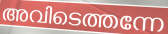
അവിടെത്തന്നേ